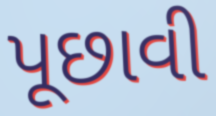
પૂછાવી